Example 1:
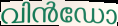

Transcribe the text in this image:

വിൻഡോ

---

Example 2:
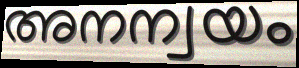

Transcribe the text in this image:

അനന്വയം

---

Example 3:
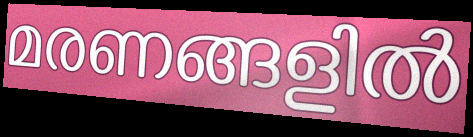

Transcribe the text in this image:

മരണങ്ങളിൽ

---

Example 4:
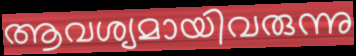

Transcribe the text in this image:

ആവശ്യമായിവരുന്നു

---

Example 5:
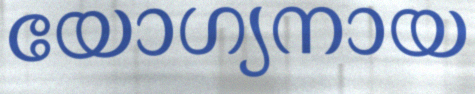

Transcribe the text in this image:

യോഗ്യനായ